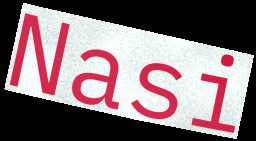
Nasi